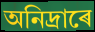
অনিদ্ৰাৰে